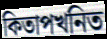
কিতাপখনিত